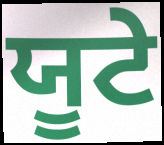
ਯੂਟੇ